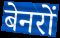
बेनरों